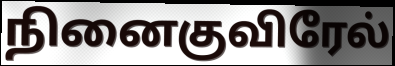
நினைகுவிரேல்